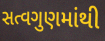
સત્વગુણમાંથી